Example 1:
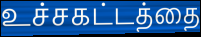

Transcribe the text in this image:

உச்சகட்டத்தை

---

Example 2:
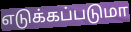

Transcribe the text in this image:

எடுக்கப்படுமா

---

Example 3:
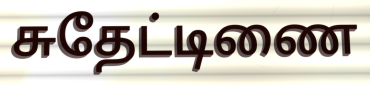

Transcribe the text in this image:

சுதேட்டிணை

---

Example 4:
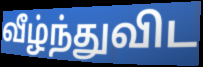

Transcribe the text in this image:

வீழ்ந்துவிட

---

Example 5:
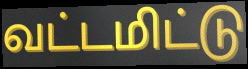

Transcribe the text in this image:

வட்டமிட்டு